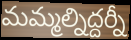
మమ్మల్నిద్దర్నీ